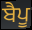
ਬੈਪੂ